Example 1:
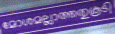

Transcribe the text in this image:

മോശമല്ലാത്തതുകൂടി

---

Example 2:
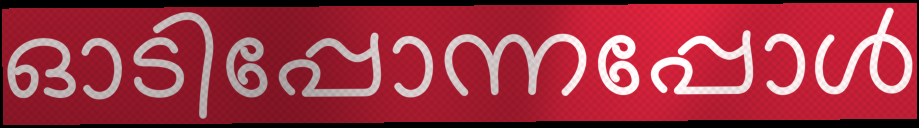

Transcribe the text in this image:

ഓടിപ്പോന്നപ്പോൾ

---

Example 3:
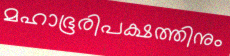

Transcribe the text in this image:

മഹാഭൂരിപക്ഷത്തിനും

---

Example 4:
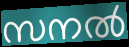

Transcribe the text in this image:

സനൽ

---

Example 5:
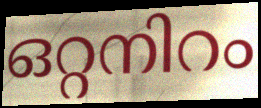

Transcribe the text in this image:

ഒറ്റനിറം